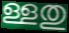
ള്ളതു